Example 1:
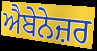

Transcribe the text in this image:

ਐਬੇਨੇਜ਼ਰ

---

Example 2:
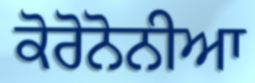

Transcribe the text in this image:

ਕੋਰੋਨੋਨੀਆ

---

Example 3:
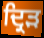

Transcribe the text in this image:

ਦ੍ਰਿੜ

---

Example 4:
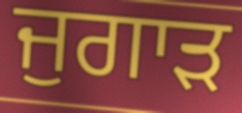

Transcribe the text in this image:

ਜੁਗਾੜ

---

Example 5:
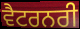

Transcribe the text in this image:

ਵੈਟਰਨਰੀ